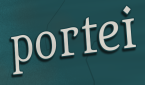
portei